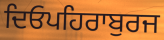
ਦਿਓਪਹਿਰਾਬੁਰਜ